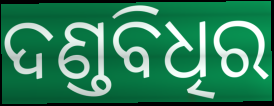
ଦଣ୍ଡବିଧିର